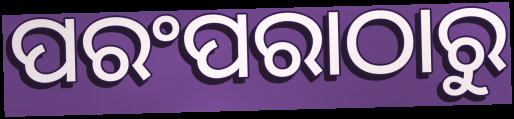
ପରଂପରାଠାରୁ